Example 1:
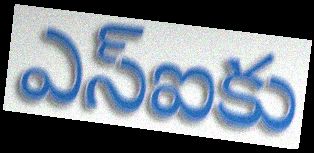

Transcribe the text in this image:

ఎస్ఐకు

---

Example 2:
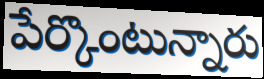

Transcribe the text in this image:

పేర్కొంటున్నారు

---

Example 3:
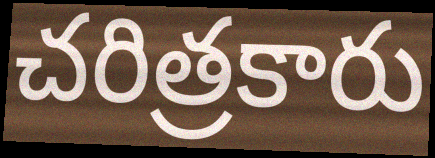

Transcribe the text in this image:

చరిత్రకారు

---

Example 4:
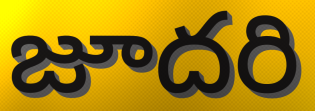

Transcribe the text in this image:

జూదరి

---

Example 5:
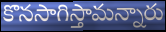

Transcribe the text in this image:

కొనసాగిస్తామన్నారు